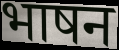
भाषन